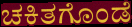
ಚಕಿತಗೊಂಡೆ